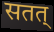
सतत्